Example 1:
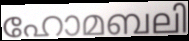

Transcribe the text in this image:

ഹോമബലി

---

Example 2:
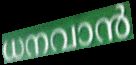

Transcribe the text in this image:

ധനവാൻ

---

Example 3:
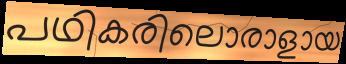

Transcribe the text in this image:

പഥികരിലൊരാളായ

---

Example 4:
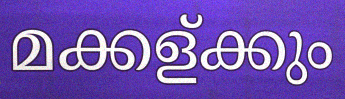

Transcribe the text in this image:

മക്കള്ക്കും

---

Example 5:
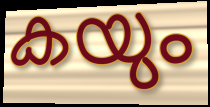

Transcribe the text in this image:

കയും